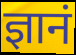
ज्ञानं